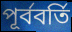
পূর্ববর্তি